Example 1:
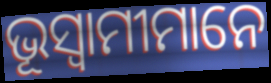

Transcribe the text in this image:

ଭୂସ୍ୱାମୀମାନେ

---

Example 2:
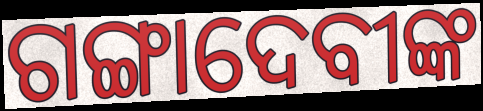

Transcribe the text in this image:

ଗଙ୍ଗାଦେବୀଙ୍କ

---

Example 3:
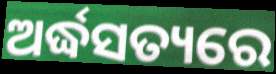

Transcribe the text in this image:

ଅର୍ଦ୍ଧସତ୍ୟରେ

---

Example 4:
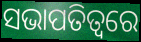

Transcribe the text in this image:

ସଭାପତିତ୍ଵରେ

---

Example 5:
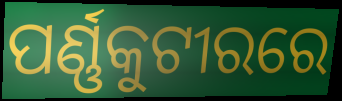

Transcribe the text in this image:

ପର୍ଣ୍ଣକୁଟୀରରେ